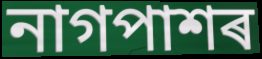
নাগপাশৰ